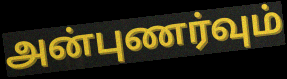
அன்புணர்வும்